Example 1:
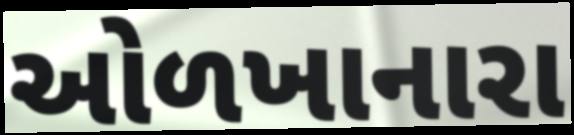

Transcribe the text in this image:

ઓળખાનારા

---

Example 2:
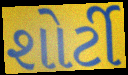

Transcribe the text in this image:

શોર્ટી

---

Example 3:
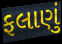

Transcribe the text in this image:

ફલાણું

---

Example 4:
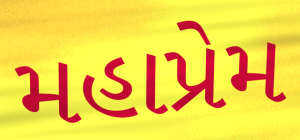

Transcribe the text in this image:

મહાપ્રેમ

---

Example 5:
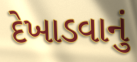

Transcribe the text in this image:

દેખાડવાનું